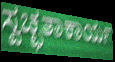
ಸ್ವಚ್ಛತಾಕಾರ್ಯ